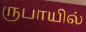
ருபாயில்